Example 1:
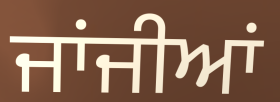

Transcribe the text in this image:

ਜਾਂਜੀਆਂ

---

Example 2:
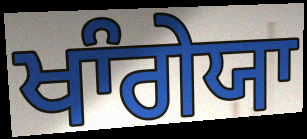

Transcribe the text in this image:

ਖਾੰਗੇਯਾ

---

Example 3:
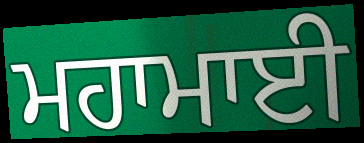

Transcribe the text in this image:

ਮਹਾਮਾਈ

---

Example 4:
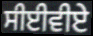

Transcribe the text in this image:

ਸੀਈਵੀਏ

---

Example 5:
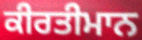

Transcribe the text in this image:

ਕੀਰਤੀਮਾਨ